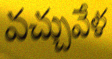
వచ్చువేళ